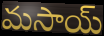
మసాయ్